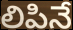
లిపినే